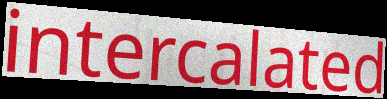
intercalated